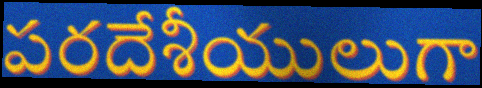
పరదేశీయులుగా